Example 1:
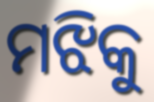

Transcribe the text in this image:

ମଝିକୁ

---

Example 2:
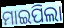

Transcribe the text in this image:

ମାଇପିଲା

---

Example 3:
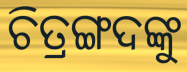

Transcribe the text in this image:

ଚିତ୍ରଙ୍ଗଦଙ୍କୁ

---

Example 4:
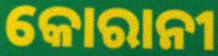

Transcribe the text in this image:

କୋରାନୀ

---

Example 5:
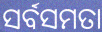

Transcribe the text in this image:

ସର୍ବସମତା